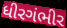
ધીરગંભીર